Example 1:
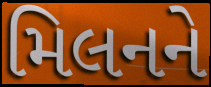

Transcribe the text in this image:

મિલનને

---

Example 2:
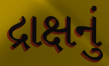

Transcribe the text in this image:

દ્રાક્ષનું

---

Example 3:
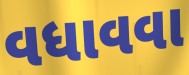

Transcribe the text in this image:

વધાવવા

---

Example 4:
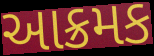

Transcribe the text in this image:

આક્રમક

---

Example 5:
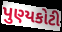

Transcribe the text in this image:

પુણ્યકોટી